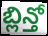
బ్లిన్తో